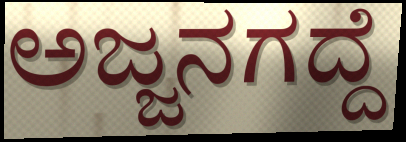
ಅಜ್ಜನಗದ್ದೆ